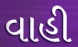
વાહી